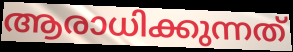
ആരാധിക്കുന്നത്